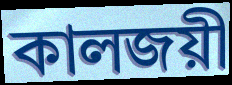
কালজয়ী